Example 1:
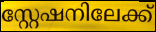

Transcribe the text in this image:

സ്റ്റേഷനിലേക്ക്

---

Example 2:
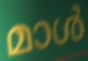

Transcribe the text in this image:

മാൾ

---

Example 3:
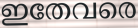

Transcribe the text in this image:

ഇതേവരെ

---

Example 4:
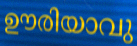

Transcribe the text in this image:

ഊരിയാവു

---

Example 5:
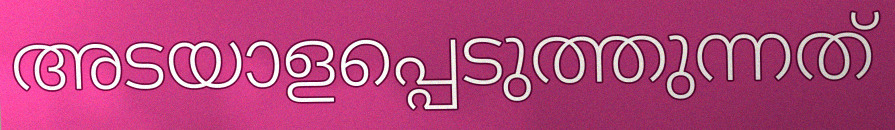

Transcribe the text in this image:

അടയാളപ്പെടുത്തുന്നത്